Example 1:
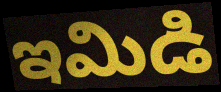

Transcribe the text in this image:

ఇమిడి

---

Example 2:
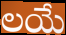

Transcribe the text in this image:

లయే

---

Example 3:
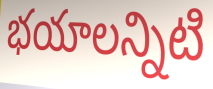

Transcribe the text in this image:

భయాలన్నిటి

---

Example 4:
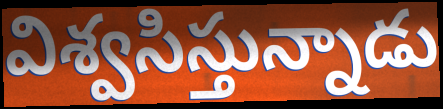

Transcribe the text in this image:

విశ్వసిస్తున్నాడు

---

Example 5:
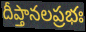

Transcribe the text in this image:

దీప్తానలప్రభః